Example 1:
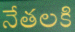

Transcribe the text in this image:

నేతలకి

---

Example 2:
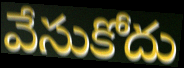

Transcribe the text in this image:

వేసుకోదు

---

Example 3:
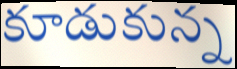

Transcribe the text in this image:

కూడుకున్న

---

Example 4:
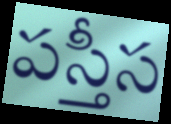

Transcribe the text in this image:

పస్తీస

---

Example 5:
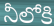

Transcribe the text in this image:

నీలోకి